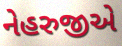
નેહરુજીએ